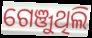
ଗେଞ୍ଜୁଥିଲି